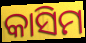
କାସିମ